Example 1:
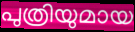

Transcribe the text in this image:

പുത്രിയുമായ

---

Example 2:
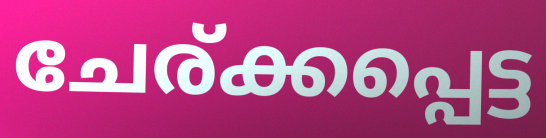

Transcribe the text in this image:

ചേര്ക്കപ്പെട്ട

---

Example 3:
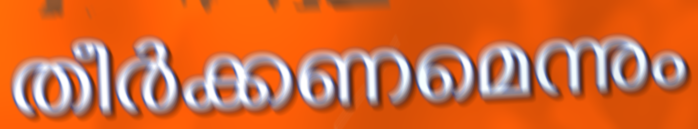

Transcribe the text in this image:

തീർക്കണമെന്നും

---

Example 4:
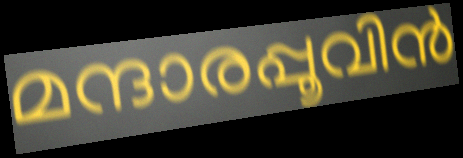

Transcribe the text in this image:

മന്ദാരപ്പൂവിൻ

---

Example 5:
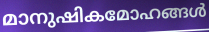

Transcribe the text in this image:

മാനുഷികമോഹങ്ങൾ